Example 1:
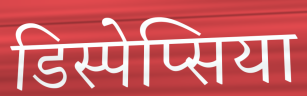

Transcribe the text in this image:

डिस्पेप्सिया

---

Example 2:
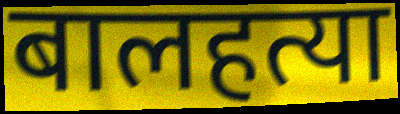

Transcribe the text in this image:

बालहत्या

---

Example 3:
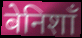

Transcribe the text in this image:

बेनिशाँ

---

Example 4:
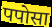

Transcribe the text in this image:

पपोसा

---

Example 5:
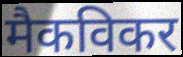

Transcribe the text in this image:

मैकविकर